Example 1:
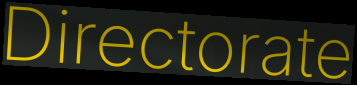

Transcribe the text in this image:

Directorate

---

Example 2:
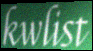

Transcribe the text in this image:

kwlist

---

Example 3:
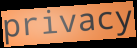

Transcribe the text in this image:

privacy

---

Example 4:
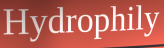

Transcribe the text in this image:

Hydrophily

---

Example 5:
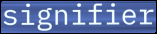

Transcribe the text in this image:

signifier